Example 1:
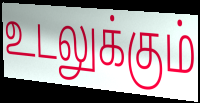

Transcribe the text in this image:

உடலுக்கும்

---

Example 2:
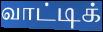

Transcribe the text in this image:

வாட்டிக்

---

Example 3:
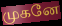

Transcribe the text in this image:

முகனே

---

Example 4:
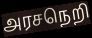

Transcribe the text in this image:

அரசநெறி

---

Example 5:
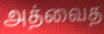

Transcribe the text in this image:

அத்வைத